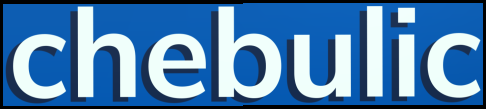
chebulic